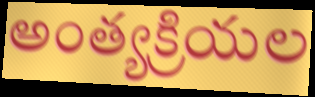
అంత్యక్రియల